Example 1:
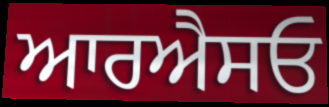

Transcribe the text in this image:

ਆਰਐਸਓ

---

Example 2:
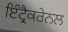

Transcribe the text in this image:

ਇੰਟ੍ਰੈਕਰੇਨਲ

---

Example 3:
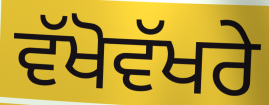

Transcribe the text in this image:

ਵੱਖੋਵੱਖਰੇ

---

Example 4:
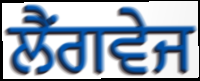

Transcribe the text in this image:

ਲੈਂਗਵੇਜ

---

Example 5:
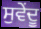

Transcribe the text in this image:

ਸੁਵੇਂਦੂ